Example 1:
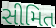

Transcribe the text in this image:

સીમિત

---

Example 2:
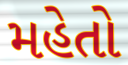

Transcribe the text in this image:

મહેતો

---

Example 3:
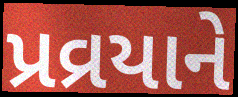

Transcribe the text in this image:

પ્રવ્રયાને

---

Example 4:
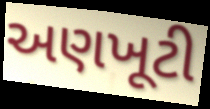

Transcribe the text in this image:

અણખૂટી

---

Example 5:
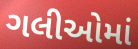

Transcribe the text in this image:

ગલીઓમાં